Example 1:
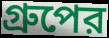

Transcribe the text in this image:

গ্রুপের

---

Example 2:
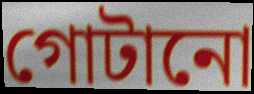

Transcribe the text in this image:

গোটানো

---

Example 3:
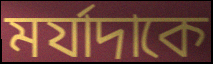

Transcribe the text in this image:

মর্যাদাকে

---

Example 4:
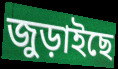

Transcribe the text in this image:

জুড়াইছে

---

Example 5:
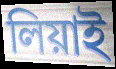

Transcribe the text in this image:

লিয়াই